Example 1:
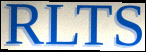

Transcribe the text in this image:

RLTS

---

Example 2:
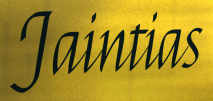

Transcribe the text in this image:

Jaintias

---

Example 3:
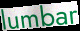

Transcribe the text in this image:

lumbar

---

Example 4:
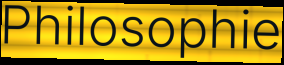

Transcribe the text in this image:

Philosophie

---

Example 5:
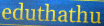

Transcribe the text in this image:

eduthathu